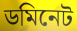
ডমিনেট